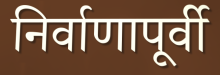
निर्वाणापूर्वी